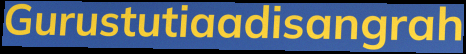
Gurustutiaadisangrah